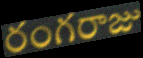
రంగరాజు